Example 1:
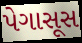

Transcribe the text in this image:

પેગાસૂસ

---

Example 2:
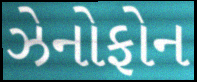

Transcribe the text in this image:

ઝેનોફોન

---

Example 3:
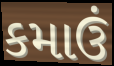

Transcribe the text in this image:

કમાઉં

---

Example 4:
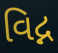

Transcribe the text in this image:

વિદ્ન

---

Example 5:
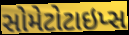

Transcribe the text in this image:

સોમેટોટાઇપ્સ